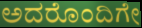
ಅದರೊಂದಿಗೇ